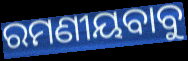
ରମଣୀୟବାବୁ